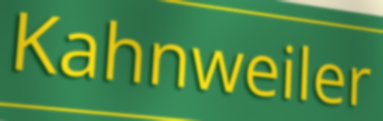
Kahnweiler